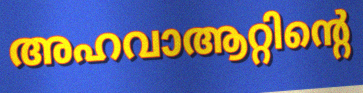
അഹവാആറ്റിന്റെ